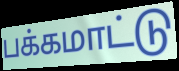
பக்கமாட்டு